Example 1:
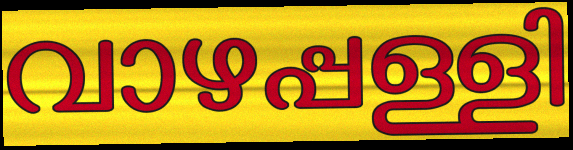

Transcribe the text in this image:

വാഴപ്പള്ളി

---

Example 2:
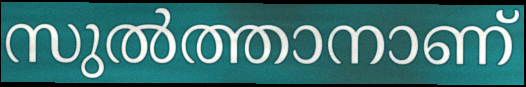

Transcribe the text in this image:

സുൽത്താനാണ്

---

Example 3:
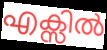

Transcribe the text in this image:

എക്സിൽ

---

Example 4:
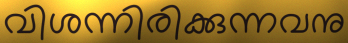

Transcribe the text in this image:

വിശന്നിരിക്കുന്നവനു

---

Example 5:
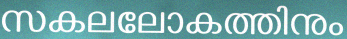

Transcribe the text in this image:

സകലലോകത്തിനും